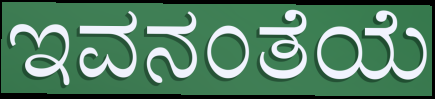
ಇವನಂತೆಯೆ